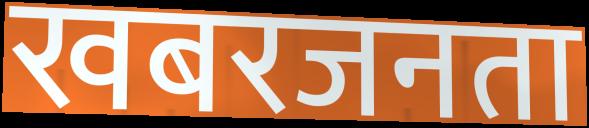
खबरजनता